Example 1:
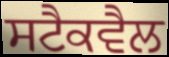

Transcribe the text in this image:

ਸਟੈਕਵੈਲ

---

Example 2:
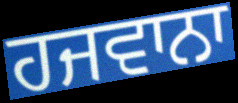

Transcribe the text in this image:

ਹਜਵਾਨਾ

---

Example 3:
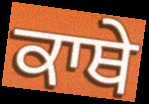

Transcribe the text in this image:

ਕਾਥੇ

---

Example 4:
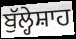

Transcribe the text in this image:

ਬੁੱਲ੍ਹੇਸ਼ਾਹ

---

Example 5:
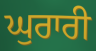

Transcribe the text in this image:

ਘੁਰਾਰੀ